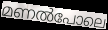
മണൽപോലെ